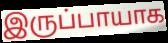
இருப்பாயாக